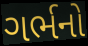
ગર્ભનો